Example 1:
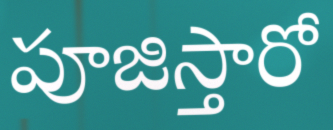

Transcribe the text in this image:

పూజిస్తారో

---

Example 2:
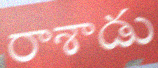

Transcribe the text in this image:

రాశాడు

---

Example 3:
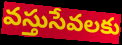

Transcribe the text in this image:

వస్తుసేవలకు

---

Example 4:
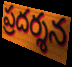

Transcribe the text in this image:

ప్రదర్శన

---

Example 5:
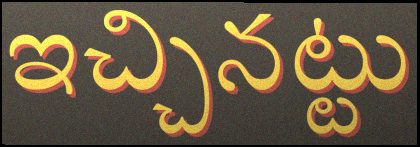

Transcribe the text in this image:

ఇచ్చినట్టు